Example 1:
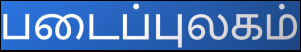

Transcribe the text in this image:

படைப்புலகம்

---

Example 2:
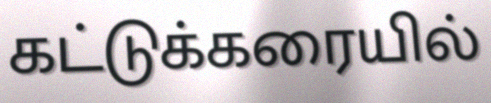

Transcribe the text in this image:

கட்டுக்கரையில்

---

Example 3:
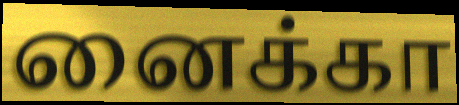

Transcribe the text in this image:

னைக்கா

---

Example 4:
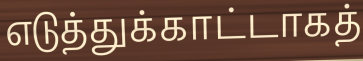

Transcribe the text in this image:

எடுத்துக்காட்டாகத்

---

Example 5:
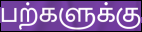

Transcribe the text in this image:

பற்களுக்கு